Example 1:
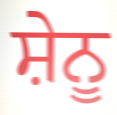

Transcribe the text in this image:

ਸ਼ੇਨੂ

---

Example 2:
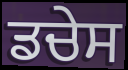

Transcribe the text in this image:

ਡਚੇਸ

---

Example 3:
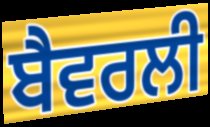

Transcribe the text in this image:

ਬੈਵਰਲੀ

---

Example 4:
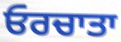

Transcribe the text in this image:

ਓਰਚਾਤਾ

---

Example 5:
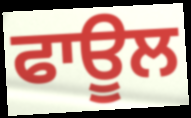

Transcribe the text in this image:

ਫਾਊਲ